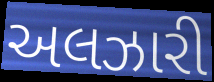
અલઝારી